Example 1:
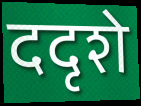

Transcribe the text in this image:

ददृशे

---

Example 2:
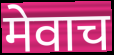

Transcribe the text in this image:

मेवाच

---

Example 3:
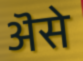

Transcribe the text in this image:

ऄसे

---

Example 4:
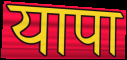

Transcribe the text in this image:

यापा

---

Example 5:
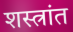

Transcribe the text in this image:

शस्त्रांत